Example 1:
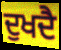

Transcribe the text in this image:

ਦੁਖਦੈ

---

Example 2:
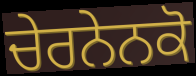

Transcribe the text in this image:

ਚੇਰਨੇਨਕੋ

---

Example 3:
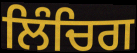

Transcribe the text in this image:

ਲਿੰਚਿਗ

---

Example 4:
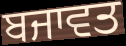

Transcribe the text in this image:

ਬਜਾਵਤ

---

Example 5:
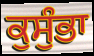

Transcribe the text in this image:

ਕੁਸੁੰਭਾ